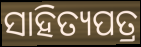
ସାହିତ୍ୟପତ୍ର